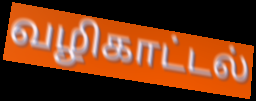
வழிகாட்டல்